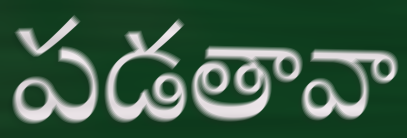
పడతావా